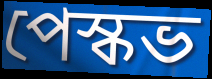
পেস্কভ